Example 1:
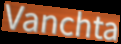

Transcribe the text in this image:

Vanchta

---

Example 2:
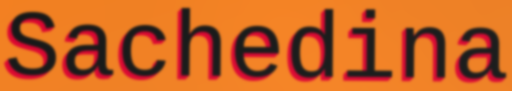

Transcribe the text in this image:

Sachedina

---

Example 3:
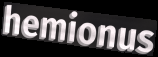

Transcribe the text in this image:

hemionus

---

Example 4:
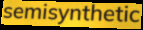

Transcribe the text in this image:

semisynthetic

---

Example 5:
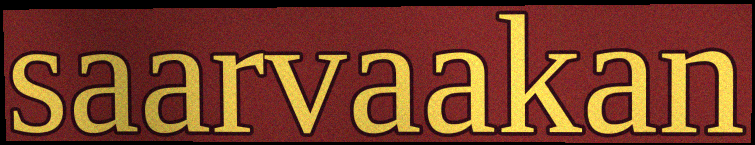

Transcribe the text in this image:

saarvaakan